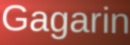
Gagarin